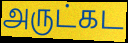
அருட்கட